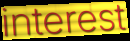
interest